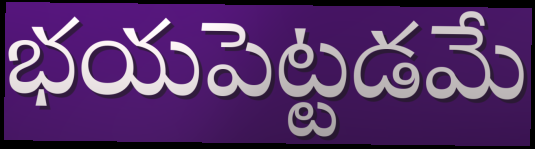
భయపెట్టడమే